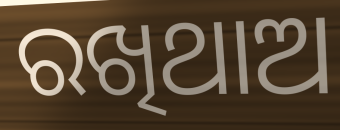
ରଖିଥାଅ